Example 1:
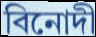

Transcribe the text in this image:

বিনোদী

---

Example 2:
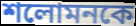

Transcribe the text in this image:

শলোমনকে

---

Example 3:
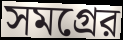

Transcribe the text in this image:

সমগ্রের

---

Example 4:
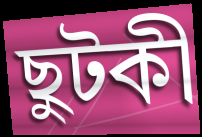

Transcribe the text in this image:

ছুটকী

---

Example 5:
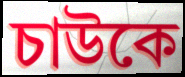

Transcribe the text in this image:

চাউকে